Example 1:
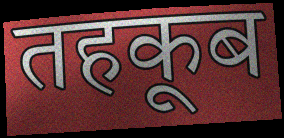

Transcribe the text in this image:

तहकूब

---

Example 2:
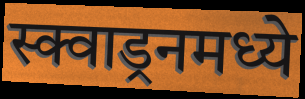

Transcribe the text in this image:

स्क्वाड्रनमध्ये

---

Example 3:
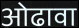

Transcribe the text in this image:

ओढावा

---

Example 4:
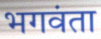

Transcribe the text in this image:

भगवंता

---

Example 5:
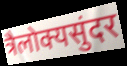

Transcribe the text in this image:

त्रैलोक्यसुंदर